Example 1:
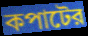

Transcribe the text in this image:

কপাটের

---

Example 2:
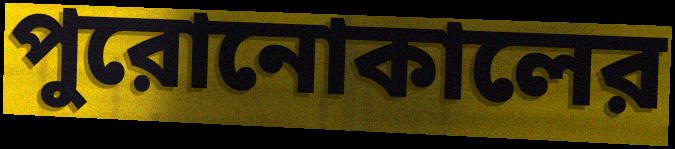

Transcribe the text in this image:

পুরোনোকালের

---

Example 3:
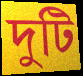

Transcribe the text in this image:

দুটি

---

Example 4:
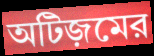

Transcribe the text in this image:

অটিজ়মের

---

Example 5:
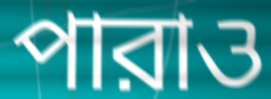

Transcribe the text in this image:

পারাও